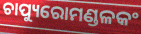
ଚାପ୍ୟୁରୋମଣ୍ଡଳକଂ